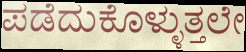
ಪಡೆದುಕೊಳ್ಳುತ್ತಲೇ